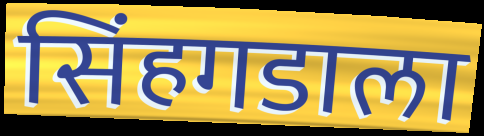
सिंहगडाला